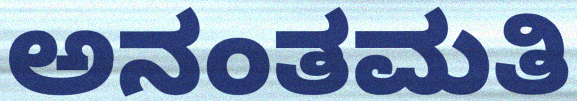
ಅನಂತಮತಿ